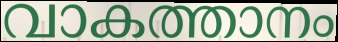
വാകത്താനം